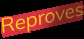
Reproves